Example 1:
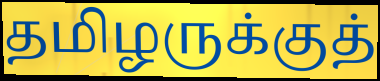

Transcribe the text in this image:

தமிழருக்குத்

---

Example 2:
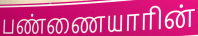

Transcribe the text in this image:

பண்ணையாரின்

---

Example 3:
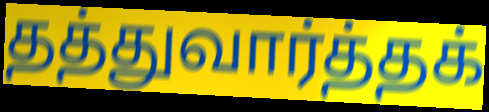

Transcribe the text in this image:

தத்துவார்த்தக்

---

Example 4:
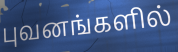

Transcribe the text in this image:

புவனங்களில்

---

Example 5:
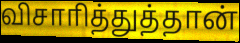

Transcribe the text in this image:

விசாரித்துத்தான்